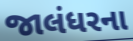
જાલંધરના